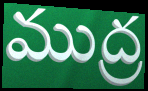
ముద్ర